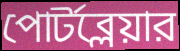
পোর্টব্লেয়ার